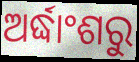
ଅର୍ଦ୍ଧାଂଶରୁ